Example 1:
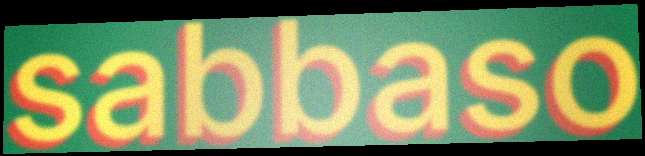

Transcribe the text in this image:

sabbaso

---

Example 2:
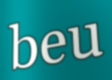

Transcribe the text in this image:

beu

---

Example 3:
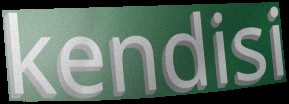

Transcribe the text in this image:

kendisi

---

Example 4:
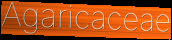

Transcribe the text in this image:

Agaricaceae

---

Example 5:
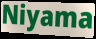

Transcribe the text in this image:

Niyama